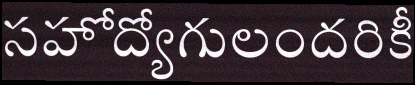
సహోద్యోగులందరికీ